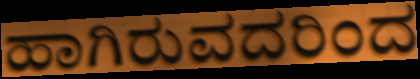
ಹಾಗಿರುವದರಿಂದ